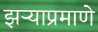
झऱ्याप्रमाणे